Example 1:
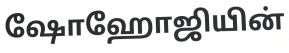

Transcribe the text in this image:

ஷோஹோஜியின்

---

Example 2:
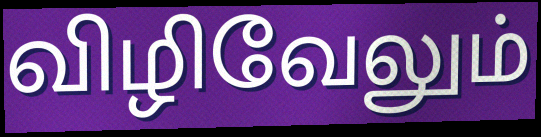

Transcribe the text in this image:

விழிவேலும்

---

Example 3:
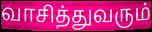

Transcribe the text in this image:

வாசித்துவரும்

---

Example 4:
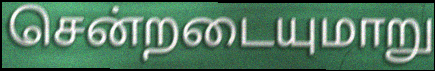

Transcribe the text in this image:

சென்றடையுமாறு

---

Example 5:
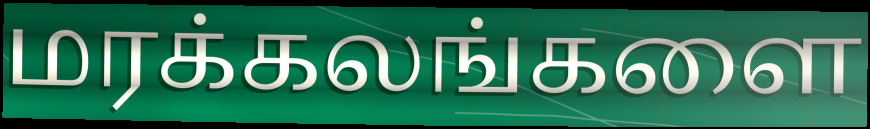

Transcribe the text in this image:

மரக்கலங்களை